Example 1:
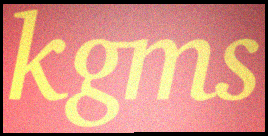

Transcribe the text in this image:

kgms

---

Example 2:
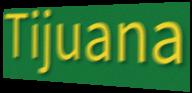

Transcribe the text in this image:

Tijuana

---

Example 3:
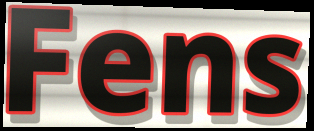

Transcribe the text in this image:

Fens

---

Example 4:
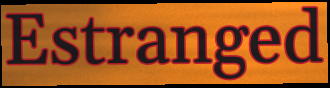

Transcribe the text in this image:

Estranged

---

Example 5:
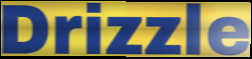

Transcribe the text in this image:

Drizzle